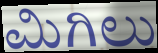
ಮಿಗಿಲು